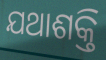
ଯଥାଶକ୍ତି